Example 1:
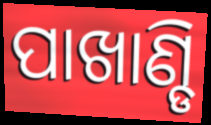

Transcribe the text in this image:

ପାଖାଣ୍ଡି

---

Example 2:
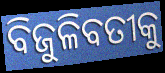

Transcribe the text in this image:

ବିଜୁଳିବତୀକୁ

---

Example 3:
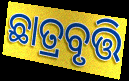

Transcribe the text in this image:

ଛାତ୍ରବୃତ୍ତି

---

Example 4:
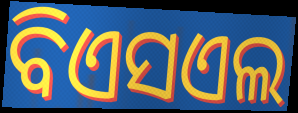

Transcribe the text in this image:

ବିଏସଏଲ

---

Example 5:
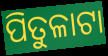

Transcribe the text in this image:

ପିତୁଳାଟା